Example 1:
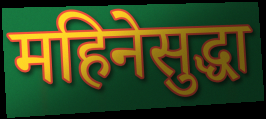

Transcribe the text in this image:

महिनेसुद्धा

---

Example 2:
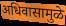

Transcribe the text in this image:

अधिवासामुळे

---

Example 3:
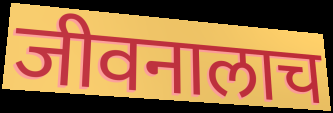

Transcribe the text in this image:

जीवनालाच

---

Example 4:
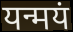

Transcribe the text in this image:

यन्मयं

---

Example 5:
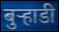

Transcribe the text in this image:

बुऱ्हाडी